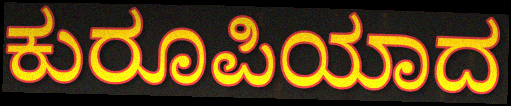
ಕುರೂಪಿಯಾದ